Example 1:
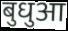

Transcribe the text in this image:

बुधुआ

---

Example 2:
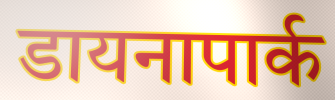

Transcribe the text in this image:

डायनापार्क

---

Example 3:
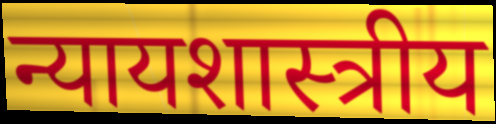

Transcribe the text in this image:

न्यायशास्त्रीय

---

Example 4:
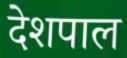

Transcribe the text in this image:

देशपाल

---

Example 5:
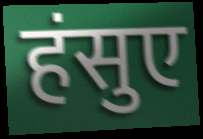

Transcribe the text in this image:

हंसुए